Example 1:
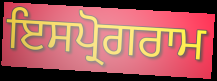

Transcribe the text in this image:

ਇਸਪ੍ਰੋਗਰਾਮ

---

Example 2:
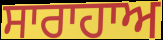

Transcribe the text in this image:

ਸਾਰਾਹਾਅ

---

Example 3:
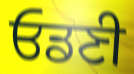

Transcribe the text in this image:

ਓਡਣੀ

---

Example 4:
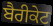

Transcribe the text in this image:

ਬੈਰੀਕੇਟ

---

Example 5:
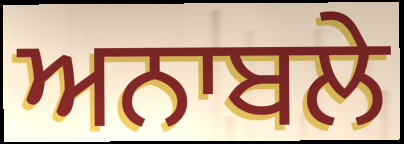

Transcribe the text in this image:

ਅਨਾਬਲੇ